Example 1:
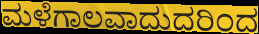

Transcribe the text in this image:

ಮಳೆಗಾಲವಾದುದರಿಂದ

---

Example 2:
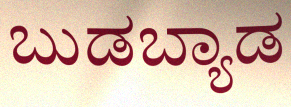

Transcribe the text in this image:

ಬುಡಬ್ಯಾಡ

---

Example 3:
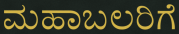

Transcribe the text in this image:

ಮಹಾಬಲರಿಗೆ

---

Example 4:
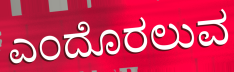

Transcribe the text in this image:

ಎಂದೊರಲುವ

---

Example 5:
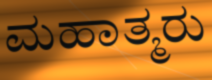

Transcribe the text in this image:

ಮಹಾತ್ಮರು